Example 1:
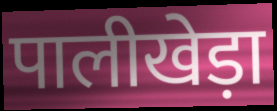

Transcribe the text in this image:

पालीखेड़ा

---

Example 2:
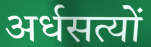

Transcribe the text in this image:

अर्धसत्यों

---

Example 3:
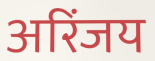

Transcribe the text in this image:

अरिंजय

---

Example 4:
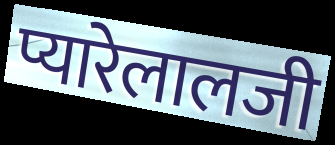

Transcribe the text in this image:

प्यारेलालजी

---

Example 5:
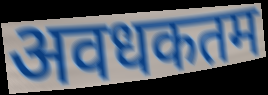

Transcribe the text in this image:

अवधकतम